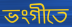
ভংগীতে